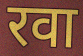
रवा